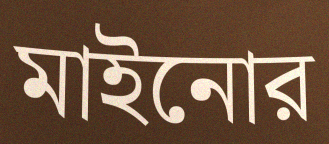
মাইনোর